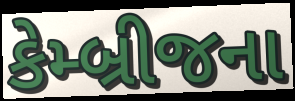
કેમ્બ્રીજના